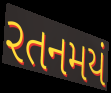
રતનમયં